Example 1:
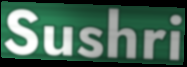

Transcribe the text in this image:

Sushri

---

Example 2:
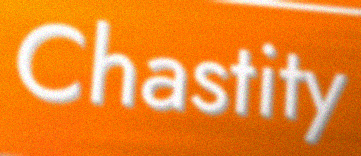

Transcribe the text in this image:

Chastity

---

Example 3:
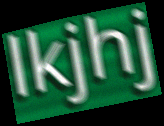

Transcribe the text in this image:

lkjhj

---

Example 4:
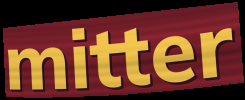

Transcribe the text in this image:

mitter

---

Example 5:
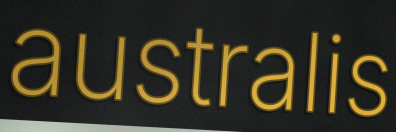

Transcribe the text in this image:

australis